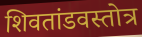
शिवतांडवस्तोत्र